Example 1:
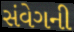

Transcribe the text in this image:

સંવેગની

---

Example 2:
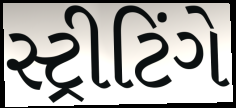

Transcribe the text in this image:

સ્ટ્રીટિંગે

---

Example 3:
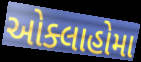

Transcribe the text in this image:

ઓક્લાહોમા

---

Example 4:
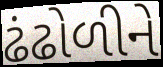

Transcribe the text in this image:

ઢંઢોળીને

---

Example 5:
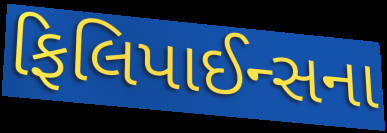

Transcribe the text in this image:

ફિલિપાઈન્સના